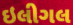
ઇલીગલ